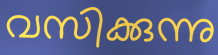
വസിക്കുന്നു